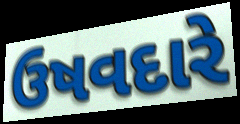
ઉષવદારે